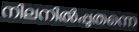
നിലനിൽപ്പുതന്നെ